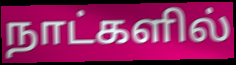
நாட்களில்